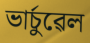
ভাৰ্চুৱেল